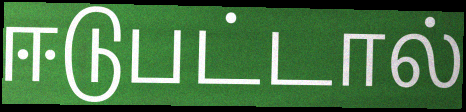
ஈடுபட்டால்